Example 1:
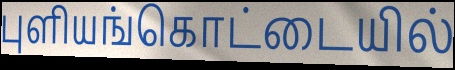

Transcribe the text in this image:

புளியங்கொட்டையில்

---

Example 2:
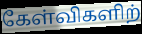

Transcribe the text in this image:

கேள்விகளிற்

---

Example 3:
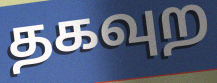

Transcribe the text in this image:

தகவுற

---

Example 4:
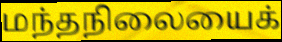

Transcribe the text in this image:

மந்தநிலையைக்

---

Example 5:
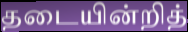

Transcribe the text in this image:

தடையின்றித்